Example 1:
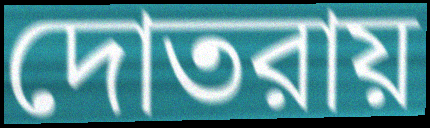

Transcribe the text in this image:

দোতরায়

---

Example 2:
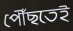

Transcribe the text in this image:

পৌঁছতেই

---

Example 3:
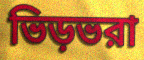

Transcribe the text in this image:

ভিড়ভরা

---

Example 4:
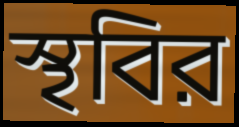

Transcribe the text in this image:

স্থবির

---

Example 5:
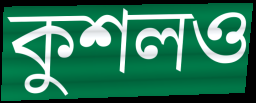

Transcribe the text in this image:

কুশলও